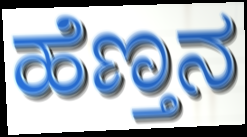
ಹೆಣ್ತನ